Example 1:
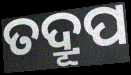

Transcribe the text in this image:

ତଦ୍ରୂପ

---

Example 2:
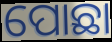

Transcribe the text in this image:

ପୋଛା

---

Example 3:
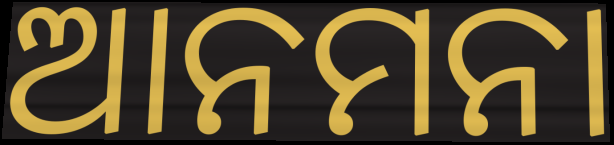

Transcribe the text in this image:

ଆନମନା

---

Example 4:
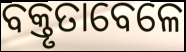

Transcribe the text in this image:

ବକ୍ତୃତାବେଳେ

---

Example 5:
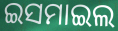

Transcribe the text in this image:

ଇସମାଇଲ